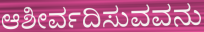
ಆಶೀರ್ವದಿಸುವವನು